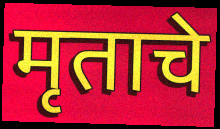
मृताचे